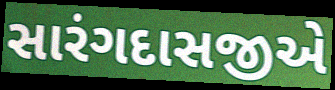
સારંગદાસજીએ